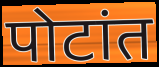
पोटांत